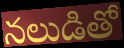
నలుడితో